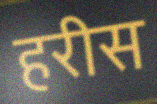
हरीस